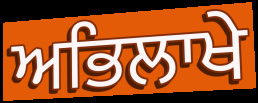
ਅਭਿਲਾਖੇ